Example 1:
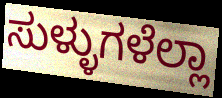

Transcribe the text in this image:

ಸುಳ್ಳುಗಳೆಲ್ಲಾ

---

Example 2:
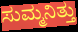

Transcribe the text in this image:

ಸುಮ್ಮನಿತ್ತು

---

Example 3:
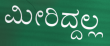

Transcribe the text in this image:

ಮೀರಿದ್ದಲ್ಲ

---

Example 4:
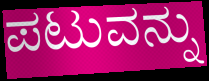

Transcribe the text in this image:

ಪಟುವನ್ನು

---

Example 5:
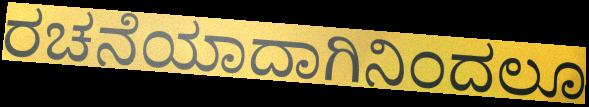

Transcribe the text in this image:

ರಚನೆಯಾದಾಗಿನಿಂದಲೂ